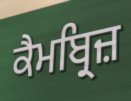
ਕੈਮਬ੍ਰਿਜ਼